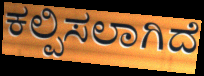
ಕಲ್ಪಿಸಲಾಗಿದೆ